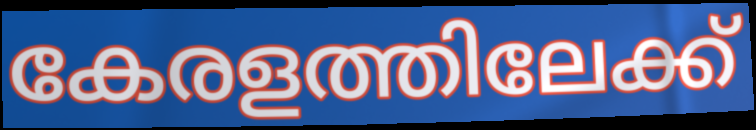
കേരളത്തിലേക്ക്